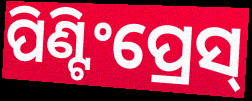
ପିଣ୍ଟିଂପ୍ରେସ୍